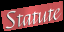
Statute